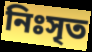
নিঃসৃত